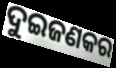
ଦୁଇଜଣକର